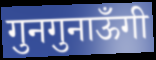
गुनगुनाऊँगी